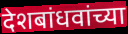
देशबांधवांच्या